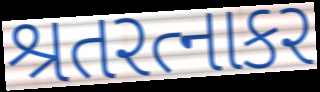
શ્રતરત્નાકર